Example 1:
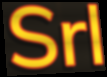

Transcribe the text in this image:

Srl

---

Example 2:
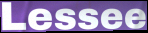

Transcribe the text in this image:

Lessee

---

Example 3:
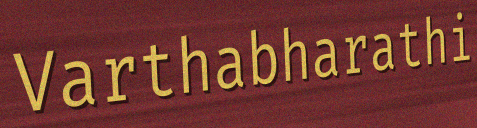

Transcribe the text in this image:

Varthabharathi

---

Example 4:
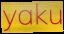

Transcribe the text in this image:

yaku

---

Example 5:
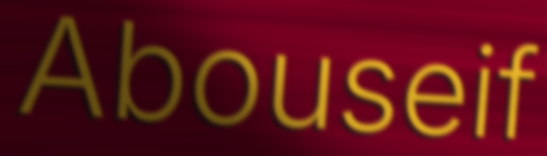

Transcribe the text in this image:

Abouseif